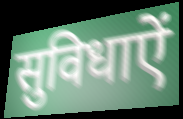
सुविधाऐं